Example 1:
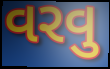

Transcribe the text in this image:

વરવુ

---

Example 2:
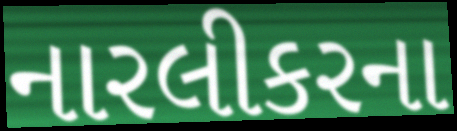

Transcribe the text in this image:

નારલીકરના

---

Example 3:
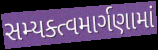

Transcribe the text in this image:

સમ્યક્ત્વમાર્ગણામાં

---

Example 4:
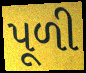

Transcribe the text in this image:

પૂળી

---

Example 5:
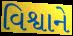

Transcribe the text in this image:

વિશ્વાને